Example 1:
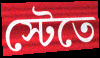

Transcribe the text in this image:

স্টেতে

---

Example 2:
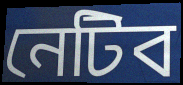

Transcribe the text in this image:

নেটিব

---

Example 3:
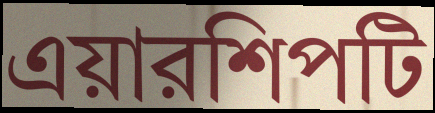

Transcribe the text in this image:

এয়ারশিপটি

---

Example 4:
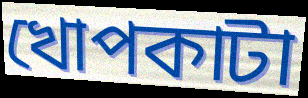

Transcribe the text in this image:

খোপকাটা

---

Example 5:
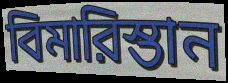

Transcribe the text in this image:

বিমারিস্তান